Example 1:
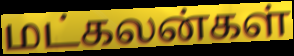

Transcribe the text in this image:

மட்கலன்கள்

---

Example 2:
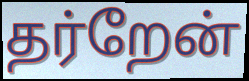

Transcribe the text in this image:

தர்றேன்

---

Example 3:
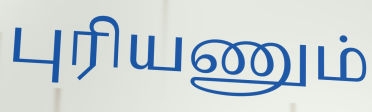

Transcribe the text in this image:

புரியணும்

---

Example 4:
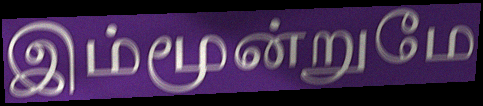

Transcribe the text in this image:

இம்மூன்றுமே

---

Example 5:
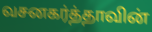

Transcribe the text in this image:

வசனகர்த்தாவின்